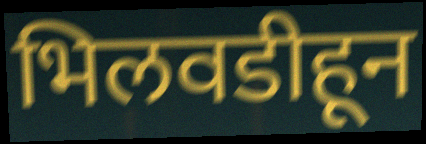
भिलवडीहून